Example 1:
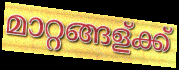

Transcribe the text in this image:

മാറ്റങ്ങള്ക്ക്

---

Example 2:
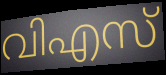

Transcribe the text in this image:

വിഎസ്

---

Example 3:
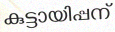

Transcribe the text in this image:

കുട്ടായിപ്പന്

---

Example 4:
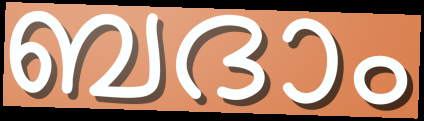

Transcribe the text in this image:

ബദാം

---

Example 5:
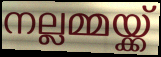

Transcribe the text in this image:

നല്ലമ്മയ്ക്ക്